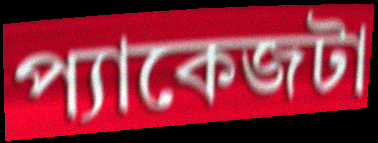
প্যাকেজটা